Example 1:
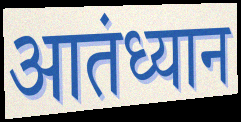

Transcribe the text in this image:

आतंध्यान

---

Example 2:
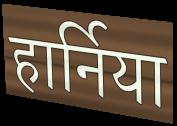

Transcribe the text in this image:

हार्निया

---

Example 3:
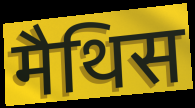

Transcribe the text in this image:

मैथिस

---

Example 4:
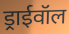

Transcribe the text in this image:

ड्राईवॉल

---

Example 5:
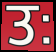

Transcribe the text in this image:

उः